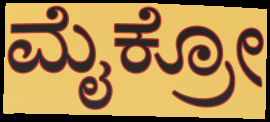
ಮೈಕ್ರೋ